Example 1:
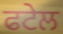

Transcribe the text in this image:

ਫਟੇਲ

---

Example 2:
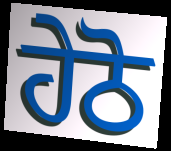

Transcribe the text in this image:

ਹੇਠੋ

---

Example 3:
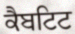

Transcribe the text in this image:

ਕੈਬਟਿਟ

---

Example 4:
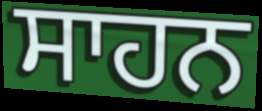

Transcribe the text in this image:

ਸਾਹਨ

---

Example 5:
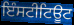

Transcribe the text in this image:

ਇੰਸਟੀਟਿਊਟ